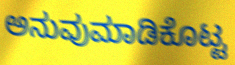
ಅನುವುಮಾಡಿಕೊಟ್ಟ